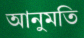
আনুমতি